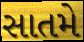
સાતમે